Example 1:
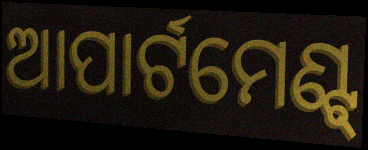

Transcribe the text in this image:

ଆପାର୍ଟମେଣ୍ଟ୍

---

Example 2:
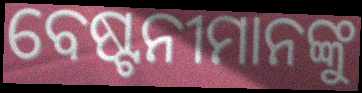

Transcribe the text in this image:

ବେଷ୍ଟନୀମାନଙ୍କୁ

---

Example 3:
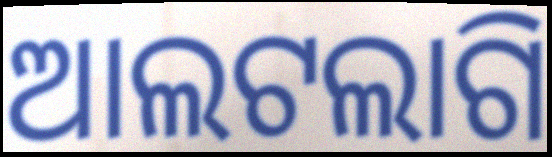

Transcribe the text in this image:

ଆଲଟଲାଗି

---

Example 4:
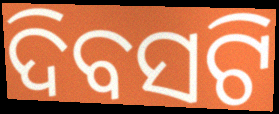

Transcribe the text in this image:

ଦିବସଟି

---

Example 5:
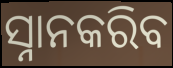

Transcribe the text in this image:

ସ୍ନାନକରିବ